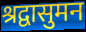
श्रद्वासुमन